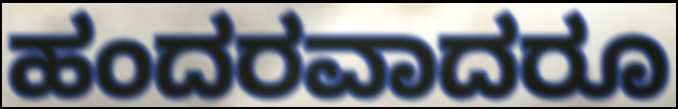
ಹಂದರವಾದರೂ